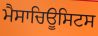
ਮੈਸਾਚਿਊਸਿਟਸ